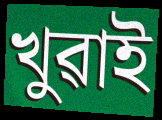
খুৱাই